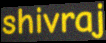
shivraj